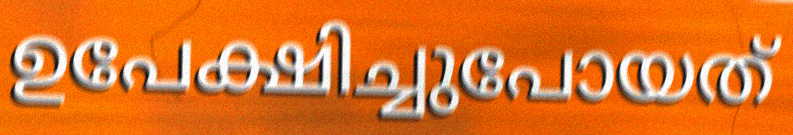
ഉപേക്ഷിച്ചുപോയത്